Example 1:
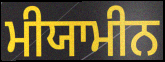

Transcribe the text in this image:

ਮੀਯਾਮੀਨ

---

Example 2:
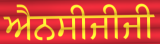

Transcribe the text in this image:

ਐਨਸੀਜੀਜੀ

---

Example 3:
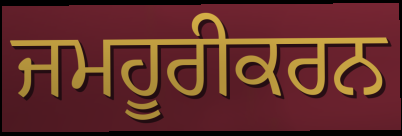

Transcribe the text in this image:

ਜਮਹੂਰੀਕਰਨ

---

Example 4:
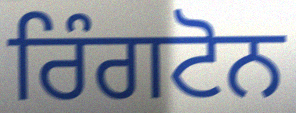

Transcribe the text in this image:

ਰਿੰਗਟੋਨ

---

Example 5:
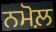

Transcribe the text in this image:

ਨਮੋਲ਼